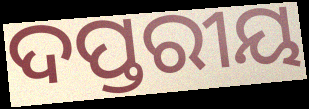
ଦପ୍ତରୀୟ